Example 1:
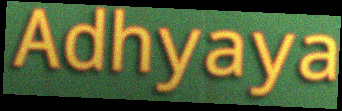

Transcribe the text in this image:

Adhyaya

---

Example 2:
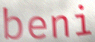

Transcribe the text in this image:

beni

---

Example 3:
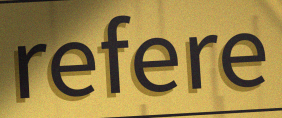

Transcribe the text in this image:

refere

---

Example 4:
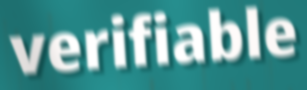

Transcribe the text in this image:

verifiable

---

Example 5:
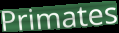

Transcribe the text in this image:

Primates